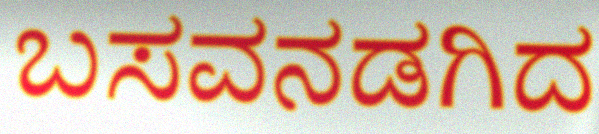
ಬಸವನಡಗಿದ